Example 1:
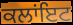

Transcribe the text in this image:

ਕਲਾਂਇਟ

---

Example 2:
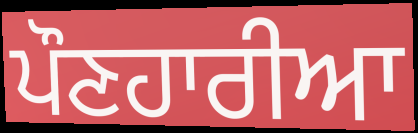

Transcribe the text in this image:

ਪੌਣਹਾਰੀਆ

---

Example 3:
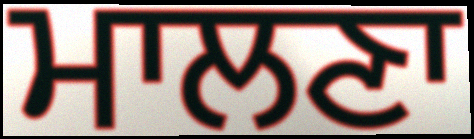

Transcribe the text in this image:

ਮਾਲਣਾ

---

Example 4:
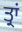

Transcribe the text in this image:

ਤ੍ਰਾਂ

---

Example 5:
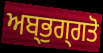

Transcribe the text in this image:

ਅਬ੍ਭੁਗ੍ਗਤੋ